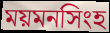
ময়মনসিংহ